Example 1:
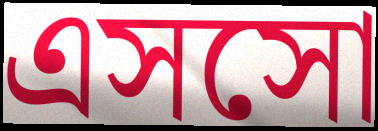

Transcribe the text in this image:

এসসো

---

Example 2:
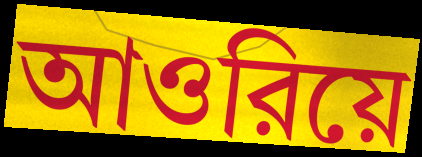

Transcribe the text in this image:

আওরিয়ে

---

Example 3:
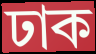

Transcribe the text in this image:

ঢাক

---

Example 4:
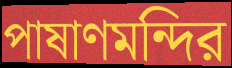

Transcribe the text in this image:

পাষাণমন্দির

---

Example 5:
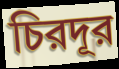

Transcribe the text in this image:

চিরদূর